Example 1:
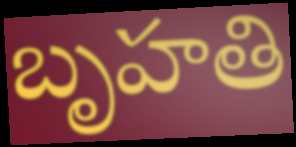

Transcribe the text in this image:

బృహతి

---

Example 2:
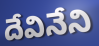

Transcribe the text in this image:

దేవినేని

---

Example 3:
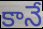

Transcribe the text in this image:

కానే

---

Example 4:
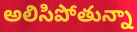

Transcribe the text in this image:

అలిసిపోతున్నా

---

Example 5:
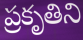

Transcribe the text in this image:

ప్రకృతిని